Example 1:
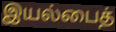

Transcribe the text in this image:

இயல்பைத்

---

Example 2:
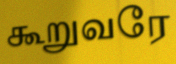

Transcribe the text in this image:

கூறுவரே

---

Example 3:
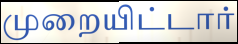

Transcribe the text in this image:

முறையிட்டார்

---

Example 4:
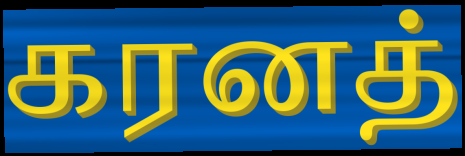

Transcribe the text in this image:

கரனத்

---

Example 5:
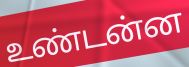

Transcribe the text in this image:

உண்டன்ன